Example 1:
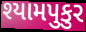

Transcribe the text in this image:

શ્યામપુકુર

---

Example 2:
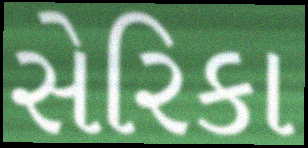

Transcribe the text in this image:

સેરિકા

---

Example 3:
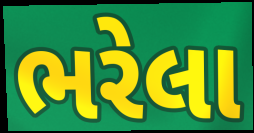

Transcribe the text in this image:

ભરેલા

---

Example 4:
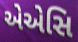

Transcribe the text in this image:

એએસિ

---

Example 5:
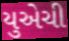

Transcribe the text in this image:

યુએચી